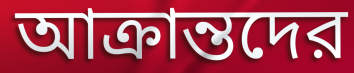
আক্রান্তদের